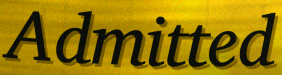
Admitted